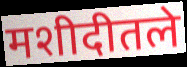
मशीदीतले